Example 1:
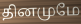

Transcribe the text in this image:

தினமுமே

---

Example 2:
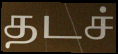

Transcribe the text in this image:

தடச்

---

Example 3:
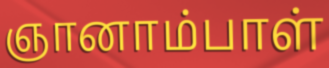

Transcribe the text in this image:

ஞானாம்பாள்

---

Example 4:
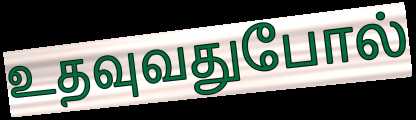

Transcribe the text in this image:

உதவுவதுபோல்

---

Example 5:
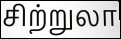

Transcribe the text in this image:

சிற்றுலா